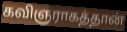
கவிஞராகத்தான்